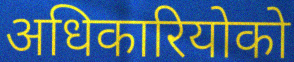
अधिकारियोको